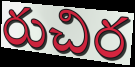
రుచిర